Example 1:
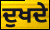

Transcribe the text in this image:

ਦੁਖਦੇ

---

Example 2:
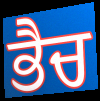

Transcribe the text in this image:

ਭੈਚ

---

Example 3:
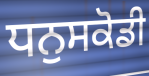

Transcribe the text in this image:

ਧਨੁਸਕੋਡੀ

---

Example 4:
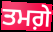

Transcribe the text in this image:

ਤਮਗ਼ੇ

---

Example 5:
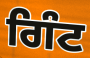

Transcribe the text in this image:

ਗਿੰਟ